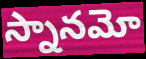
స్నానమో